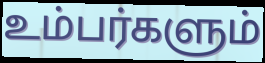
உம்பர்களும்